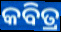
କବିତ୍ର